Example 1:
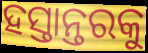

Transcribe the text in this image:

ହସ୍ତାନ୍ତରକୁ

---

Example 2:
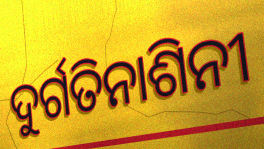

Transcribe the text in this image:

ଦୁର୍ଗତିନାଶିନୀ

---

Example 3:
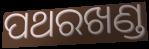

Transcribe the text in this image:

ପଥରଖଣ୍ଡ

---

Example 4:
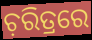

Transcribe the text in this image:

ଚ଼ରିତ୍ରରେ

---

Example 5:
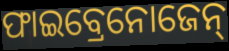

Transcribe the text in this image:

ଫାଇବ୍ରେନୋଜେନ୍